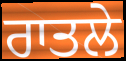
ਰਾਤਲੇ